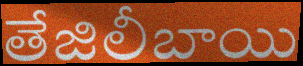
తేజిలీబాయి